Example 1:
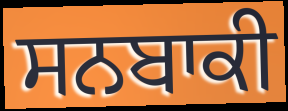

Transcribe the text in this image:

ਸਨਬਾਕੀ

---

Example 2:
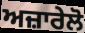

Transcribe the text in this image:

ਅਜ਼ਾਰੇਲੋ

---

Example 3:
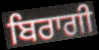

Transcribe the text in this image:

ਬਿਰਾਗੀ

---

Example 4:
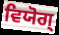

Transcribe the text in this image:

ਵਿਯੋਗ੍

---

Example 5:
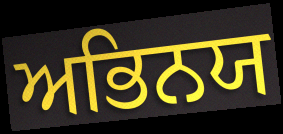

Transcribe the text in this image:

ਅਭਿਨਯ